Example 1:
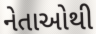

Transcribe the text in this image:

નેતાઓથી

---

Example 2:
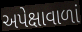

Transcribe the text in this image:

અપેક્ષાવાળાં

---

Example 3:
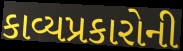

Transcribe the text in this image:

કાવ્યપ્રકારોની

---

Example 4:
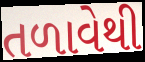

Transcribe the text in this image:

તળાવેથી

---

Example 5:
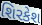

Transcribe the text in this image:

શિરકેશ